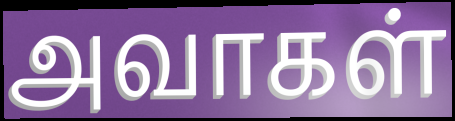
அவாகள்